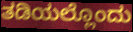
ತಡಿಯಲ್ಲೊಂದು